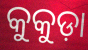
କୁକୁଡ଼ା